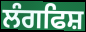
ਲੰਗਫਿਸ਼